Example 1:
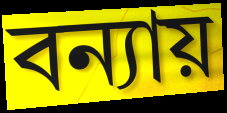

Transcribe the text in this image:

বন্যায়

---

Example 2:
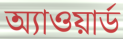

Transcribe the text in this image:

অ্যাওয়ার্ড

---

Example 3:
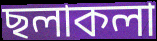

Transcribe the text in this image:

ছলাকলা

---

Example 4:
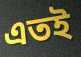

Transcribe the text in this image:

এতই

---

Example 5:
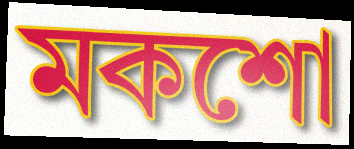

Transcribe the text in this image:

মকশো